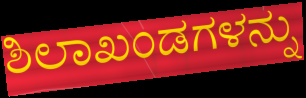
ಶಿಲಾಖಂಡಗಳನ್ನು